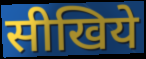
सीखिये